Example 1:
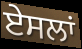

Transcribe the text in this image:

ਏਸਲਾਂ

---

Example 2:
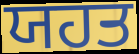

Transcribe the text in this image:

ਯਹਤ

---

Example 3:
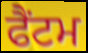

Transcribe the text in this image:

ਫੈਂਟਮ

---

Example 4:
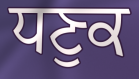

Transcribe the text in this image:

ਧਣੁਕ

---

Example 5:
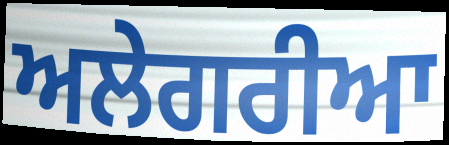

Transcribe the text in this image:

ਅਲੇਗਰੀਆ